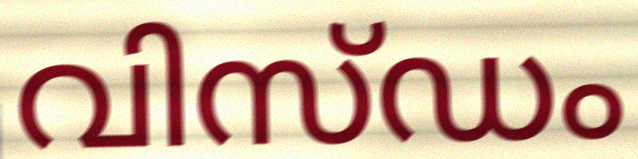
വിസ്ഡം